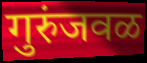
गुरुंजवळ